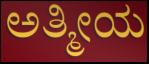
ಅತ್ಮೀಯ